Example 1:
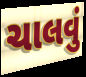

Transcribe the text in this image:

ચાલવું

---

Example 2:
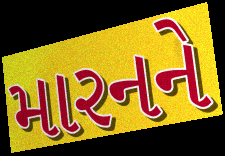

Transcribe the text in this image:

મારનને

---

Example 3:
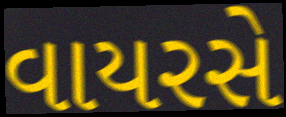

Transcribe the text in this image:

વાયરસે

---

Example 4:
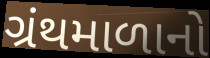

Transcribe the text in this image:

ગ્રંથમાળાનો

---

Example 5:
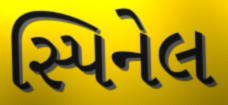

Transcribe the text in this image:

સ્પિનેલ